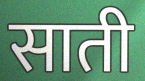
साती